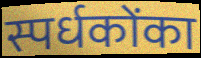
स्पर्धकोंका